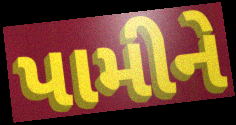
પામીને